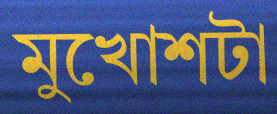
মুখোশটা